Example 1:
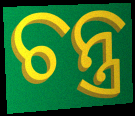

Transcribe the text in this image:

ଚନ୍ତ୍ର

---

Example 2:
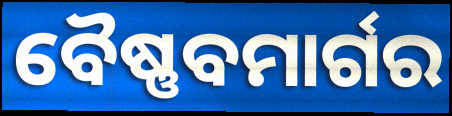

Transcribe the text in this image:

ବୈଷ୍ଣବମାର୍ଗର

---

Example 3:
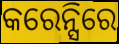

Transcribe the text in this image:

କରେନ୍ସିରେ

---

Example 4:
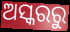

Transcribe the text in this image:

ଅସ୍କରରୁ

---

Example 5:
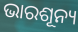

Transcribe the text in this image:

ଭାରଶୂନ୍ୟ